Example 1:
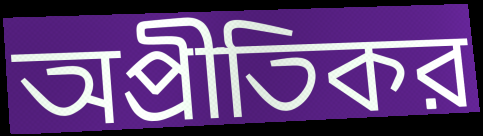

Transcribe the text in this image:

অপ্রীতিকর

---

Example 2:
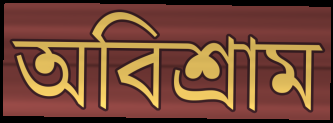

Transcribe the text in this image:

অবিশ্রাম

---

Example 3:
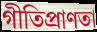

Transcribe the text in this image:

গীতিপ্রাণতা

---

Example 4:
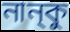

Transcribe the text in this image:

নান্‌কু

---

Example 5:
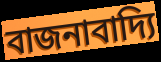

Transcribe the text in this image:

বাজনাবাদ্যি